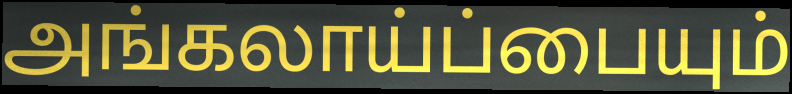
அங்கலாய்ப்பையும்